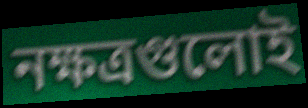
নক্ষত্রগুলোই